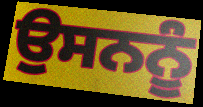
ਉਸਨਨੂੰ